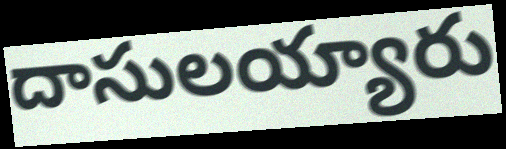
దాసులయ్యారు